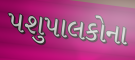
પશુપાલકોના